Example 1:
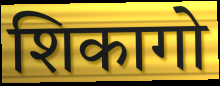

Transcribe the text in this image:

शिकागो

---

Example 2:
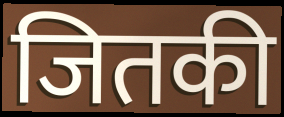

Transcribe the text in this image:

जितकी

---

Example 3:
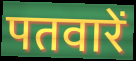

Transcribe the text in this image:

पतवारें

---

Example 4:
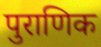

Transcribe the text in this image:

पुराणिक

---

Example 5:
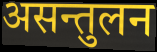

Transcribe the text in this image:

असन्तुलन